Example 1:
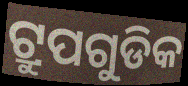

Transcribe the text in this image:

ଟ୍ରୁପଗୁଡିକ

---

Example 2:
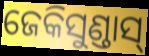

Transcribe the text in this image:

ଜେକିସୁଣ୍ଡାସ୍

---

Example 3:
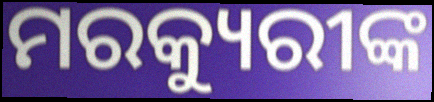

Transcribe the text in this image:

ମରକ୍ୟୁରୀଙ୍କ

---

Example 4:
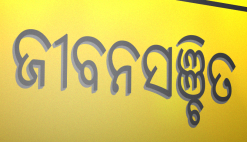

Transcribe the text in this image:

ଜୀବନସଞ୍ଚିତ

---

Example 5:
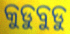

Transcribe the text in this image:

କୁଡୁବୁଡୁ